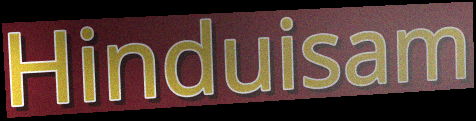
Hinduisam